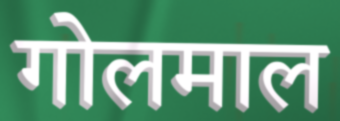
गोलमाल